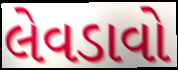
લેવડાવો